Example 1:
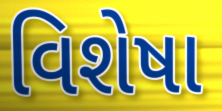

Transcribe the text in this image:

વિશેષા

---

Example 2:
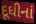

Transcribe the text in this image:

દૂધીનાં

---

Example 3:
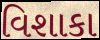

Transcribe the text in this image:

વિશાકા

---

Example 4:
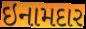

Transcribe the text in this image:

ઇનામદાર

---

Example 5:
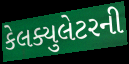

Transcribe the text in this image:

કેલક્યુલેટરની